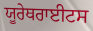
ਯੂਰੇਥਰਾਈਟਸ